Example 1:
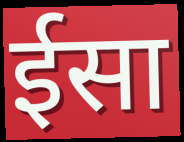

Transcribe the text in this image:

ईसा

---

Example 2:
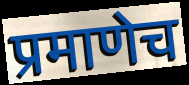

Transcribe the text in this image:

प्रमाणेच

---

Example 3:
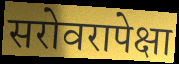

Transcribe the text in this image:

सरोवरापेक्षा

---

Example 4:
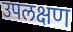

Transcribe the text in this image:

उपलक्षण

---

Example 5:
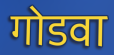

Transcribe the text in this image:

गोडवा